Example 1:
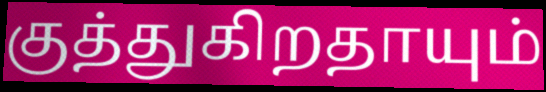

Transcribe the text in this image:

குத்துகிறதாயும்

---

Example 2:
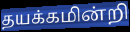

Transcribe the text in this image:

தயக்கமின்றி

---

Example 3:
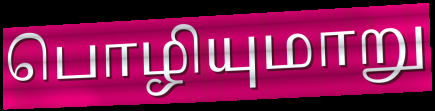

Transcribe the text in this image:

பொழியுமாறு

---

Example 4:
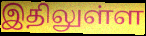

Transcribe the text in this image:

இதிலுள்ள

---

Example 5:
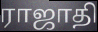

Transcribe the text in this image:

ராஜாதி